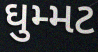
ઘુમ્મટ